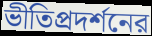
ভীতিপ্রদর্শনের